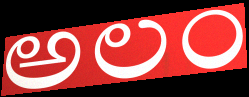
అలం